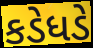
કડેધડે